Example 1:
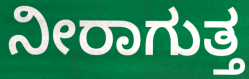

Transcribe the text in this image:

ನೀರಾಗುತ್ತ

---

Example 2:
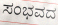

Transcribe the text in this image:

ಸಂಭವದ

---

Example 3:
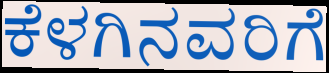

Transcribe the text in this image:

ಕೆಳಗಿನವರಿಗೆ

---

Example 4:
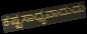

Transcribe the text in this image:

ಕಷ್ಟಸಾಧ್ಯವಾದುದು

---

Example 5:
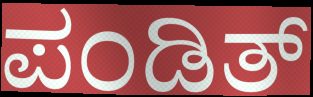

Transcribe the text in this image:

ಪಂಡಿತ್